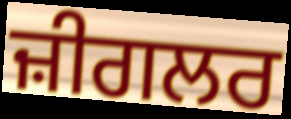
ਜ਼ੀਗਲਰ